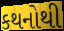
કથનોથી